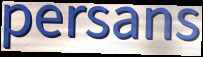
persans